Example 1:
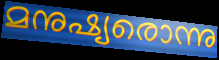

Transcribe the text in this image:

മനുഷ്യരൊന്നു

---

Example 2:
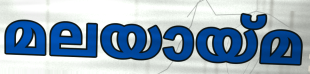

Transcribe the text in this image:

മലയായ്മ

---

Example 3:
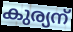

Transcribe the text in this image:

കുര്യന്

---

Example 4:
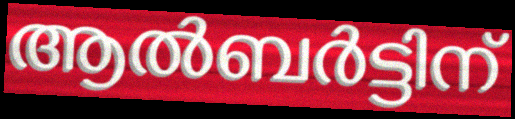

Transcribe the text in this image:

ആൽബർട്ടിന്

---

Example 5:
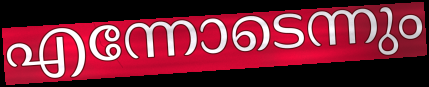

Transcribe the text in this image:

എന്നോടെന്നും